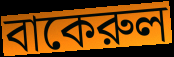
বাকেরুল